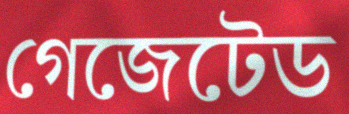
গেজেটেড